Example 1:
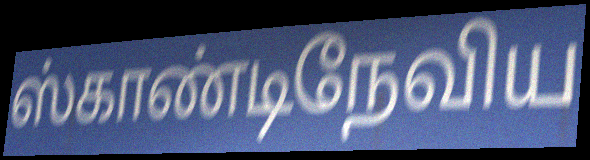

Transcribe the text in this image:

ஸ்காண்டிநேவிய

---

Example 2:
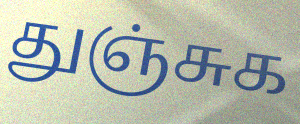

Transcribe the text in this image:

துஞ்சுக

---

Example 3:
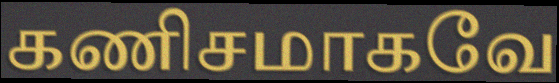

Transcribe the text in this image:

கணிசமாகவே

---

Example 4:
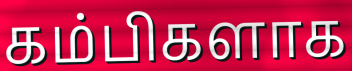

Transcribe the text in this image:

கம்பிகளாக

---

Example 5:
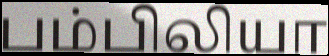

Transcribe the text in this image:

பம்பிலியா